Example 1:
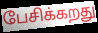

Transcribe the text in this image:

பேசிக்கறது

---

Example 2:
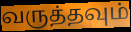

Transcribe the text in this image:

வருத்தவும்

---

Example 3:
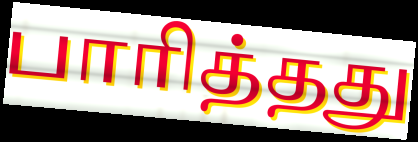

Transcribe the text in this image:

பாரித்தது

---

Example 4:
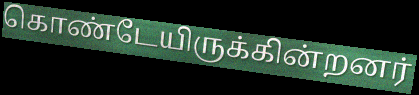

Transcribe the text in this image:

கொண்டேயிருக்கின்றனர்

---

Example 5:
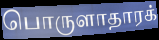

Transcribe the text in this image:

பொருளாதாரக்